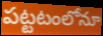
పట్టటంలోనూ